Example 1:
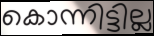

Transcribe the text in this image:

കൊന്നിട്ടില്ല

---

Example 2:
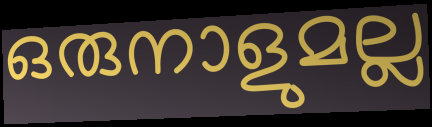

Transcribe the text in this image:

ഒരുനാളുമല്ല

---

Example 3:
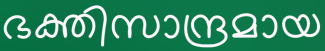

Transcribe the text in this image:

ഭക്തിസാന്ദ്രമായ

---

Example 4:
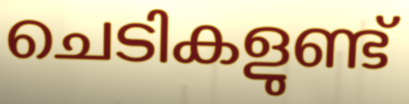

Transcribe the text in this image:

ചെടികളുണ്ട്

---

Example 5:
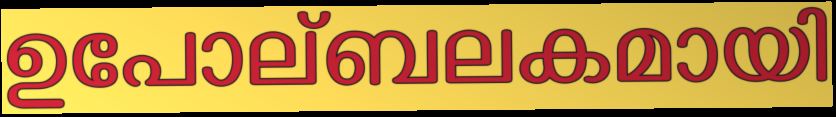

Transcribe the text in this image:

ഉപോല്ബലകമായി